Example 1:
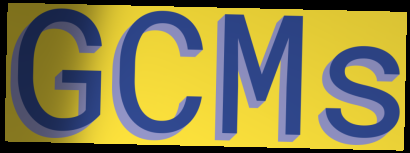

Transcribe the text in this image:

GCMs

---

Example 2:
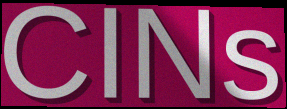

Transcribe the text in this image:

CINs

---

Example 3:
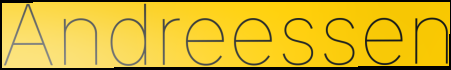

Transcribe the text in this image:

Andreessen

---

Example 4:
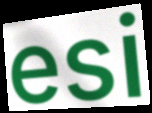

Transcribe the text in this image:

esi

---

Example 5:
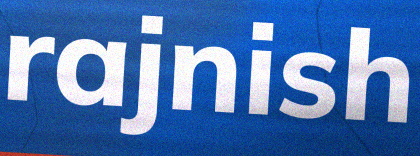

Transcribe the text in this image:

rajnish